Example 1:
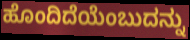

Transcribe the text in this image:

ಹೊಂದಿದೆಯೆಂಬುದನ್ನು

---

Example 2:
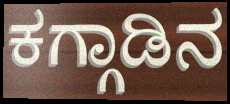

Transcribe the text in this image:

ಕಗ್ಗಾಡಿನ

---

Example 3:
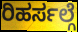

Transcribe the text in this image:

ರಿಹರ್ಸಲ್ಗೆ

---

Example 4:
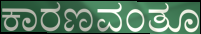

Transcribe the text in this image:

ಕಾರಣವಂತೂ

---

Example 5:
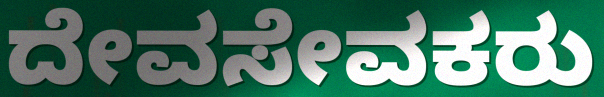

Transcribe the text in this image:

ದೇವಸೇವಕರು